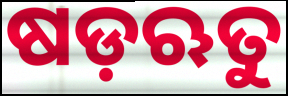
ଷଡ଼ଋତୁ